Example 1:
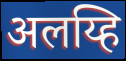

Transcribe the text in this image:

अलय्हि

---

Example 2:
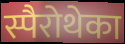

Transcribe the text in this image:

स्पैरोथेका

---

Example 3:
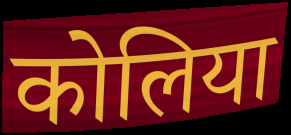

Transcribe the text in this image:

कोलिया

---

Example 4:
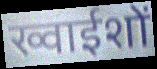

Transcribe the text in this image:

ख्वाईशों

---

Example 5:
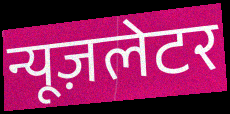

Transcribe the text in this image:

न्यूज़लेटर